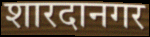
शारदानगर